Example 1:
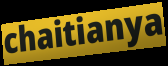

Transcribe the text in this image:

chaitianya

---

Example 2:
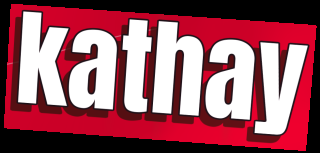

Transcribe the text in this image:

kathay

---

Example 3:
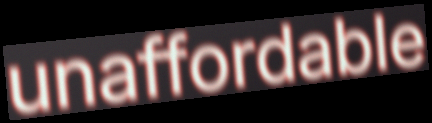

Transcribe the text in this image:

unaffordable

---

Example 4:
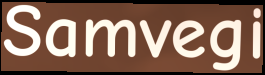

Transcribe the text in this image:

Samvegi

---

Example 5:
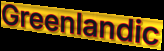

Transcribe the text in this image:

Greenlandic